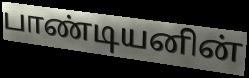
பாண்டியனின்